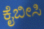
ಕೈಬೀಸಿ